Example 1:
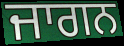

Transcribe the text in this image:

ਜਾਗਨ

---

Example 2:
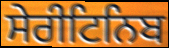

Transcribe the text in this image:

ਸੇਰੀਟਿਨਿਬ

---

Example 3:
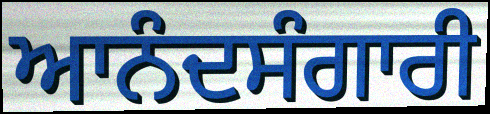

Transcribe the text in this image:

ਆਨੰਦਸੰਗਾਰੀ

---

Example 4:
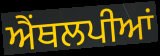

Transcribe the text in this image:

ਐਂਥਲਪੀਆਂ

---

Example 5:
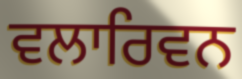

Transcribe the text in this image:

ਵਲਾਰਿਵਨ